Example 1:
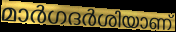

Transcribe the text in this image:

മാർഗദർശിയാണ്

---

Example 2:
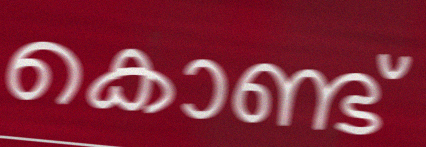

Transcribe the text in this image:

കൊണ്ട്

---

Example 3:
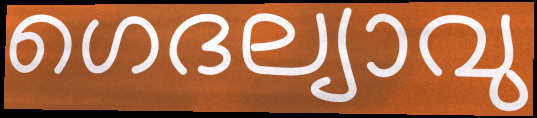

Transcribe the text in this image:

ഗെദല്യാവു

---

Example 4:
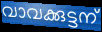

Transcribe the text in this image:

വാവക്കുട്ടന്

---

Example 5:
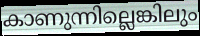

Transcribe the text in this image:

കാണുന്നില്ലെങ്കിലും